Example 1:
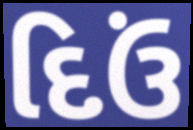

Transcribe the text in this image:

દિઉં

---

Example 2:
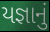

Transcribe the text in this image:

યજ્ઞાનું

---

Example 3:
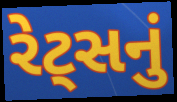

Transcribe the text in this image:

રેટ્સનું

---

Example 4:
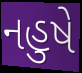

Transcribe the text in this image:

નહુષે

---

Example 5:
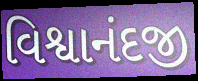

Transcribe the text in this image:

વિશ્વાનંદજી